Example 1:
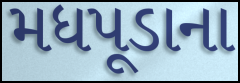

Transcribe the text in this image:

મધપૂડાના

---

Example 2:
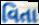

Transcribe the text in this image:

વિતા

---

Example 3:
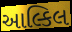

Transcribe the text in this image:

આલ્કિલ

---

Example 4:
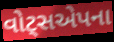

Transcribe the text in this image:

વોટ્સએપના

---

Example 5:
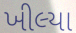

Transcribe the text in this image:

ખીલ્યા